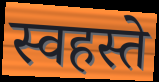
स्वहस्ते